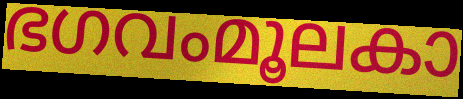
ഭഗവംമൂലകാ